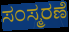
ಸಂಸ್ಮರಣೆ